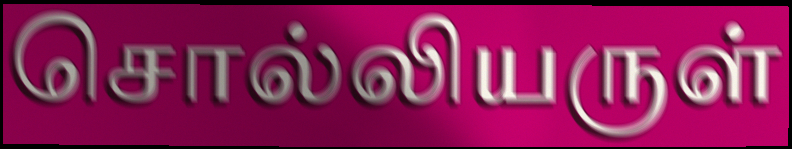
சொல்லியருள்